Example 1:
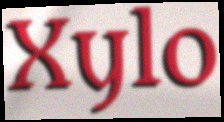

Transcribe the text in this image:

Xylo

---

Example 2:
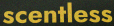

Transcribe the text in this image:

scentless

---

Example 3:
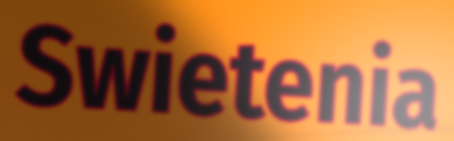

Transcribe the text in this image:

Swietenia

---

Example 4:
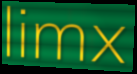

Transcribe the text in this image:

limx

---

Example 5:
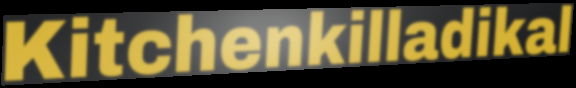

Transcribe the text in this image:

Kitchenkilladikal